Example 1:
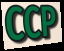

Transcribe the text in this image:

CCP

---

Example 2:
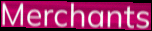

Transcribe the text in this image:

Merchants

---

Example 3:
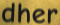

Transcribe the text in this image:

dher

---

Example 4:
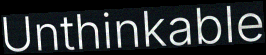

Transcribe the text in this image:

Unthinkable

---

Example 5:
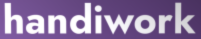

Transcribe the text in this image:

handiwork